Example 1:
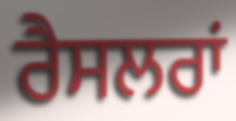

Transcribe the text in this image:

ਰੈਸਲਰਾਂ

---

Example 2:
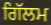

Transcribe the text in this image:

ਗਿੱਲਮ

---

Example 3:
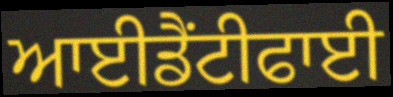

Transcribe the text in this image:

ਆਈਡੈਂਟੀਫਾਈ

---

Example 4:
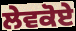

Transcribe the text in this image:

ਲੇਵਕੋਏ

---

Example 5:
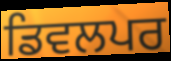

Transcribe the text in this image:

ਡਿਵਲਪਰ